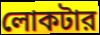
লোকটার